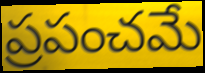
ప్రపంచమే